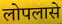
लोपलासे